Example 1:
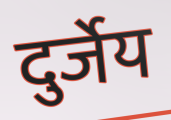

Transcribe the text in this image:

दुर्जेय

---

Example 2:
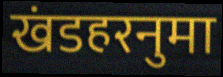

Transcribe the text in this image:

खंडहरनुमा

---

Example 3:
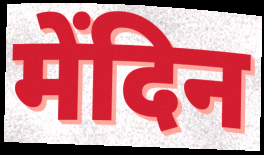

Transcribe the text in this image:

मेंदिन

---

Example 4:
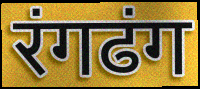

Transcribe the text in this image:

रंगढंग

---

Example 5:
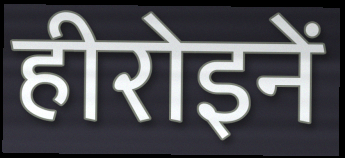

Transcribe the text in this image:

हीरोइनें